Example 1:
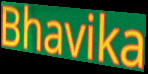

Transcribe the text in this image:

Bhavika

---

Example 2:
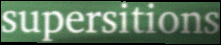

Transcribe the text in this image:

supersitions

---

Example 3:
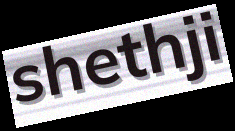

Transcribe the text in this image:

shethji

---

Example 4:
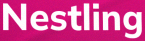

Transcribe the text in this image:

Nestling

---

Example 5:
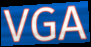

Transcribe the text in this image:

VGA